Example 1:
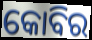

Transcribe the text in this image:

କୋବିର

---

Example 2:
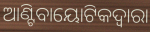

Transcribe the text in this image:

ଆଣ୍ଟିବାୟୋଟିକଦ୍ୱାରା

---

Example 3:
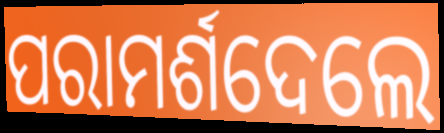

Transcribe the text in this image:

ପରାମର୍ଶଦେଲେ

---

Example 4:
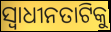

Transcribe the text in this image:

ସ୍ୱାଧୀନତାଟିକୁ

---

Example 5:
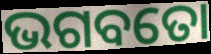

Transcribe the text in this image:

ଭଗବତୋ